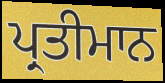
ਪ੍ਰਤੀਮਾਨ